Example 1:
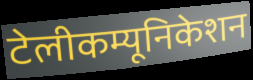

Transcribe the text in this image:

टेलीकम्‍यूनिकेशन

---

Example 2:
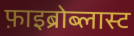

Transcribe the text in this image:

फ़ाइब्रोब्लास्ट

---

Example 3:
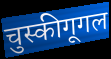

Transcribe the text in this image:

चुस्कीगूगल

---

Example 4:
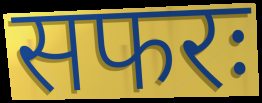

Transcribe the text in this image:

सफरः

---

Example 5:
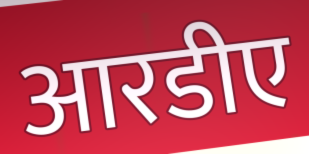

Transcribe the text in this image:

आरडीए